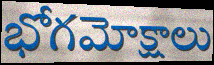
భోగమోక్షాలు